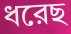
ধরেছ